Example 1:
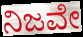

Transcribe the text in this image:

ನಿಜವೇ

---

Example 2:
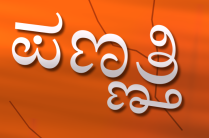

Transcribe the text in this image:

ಪಣ್ಣತ್ತಿ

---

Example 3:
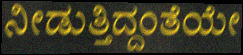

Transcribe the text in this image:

ನೀಡುತ್ತಿದ್ದಂತೆಯೇ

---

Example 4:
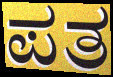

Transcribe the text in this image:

ಪತ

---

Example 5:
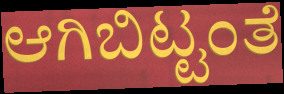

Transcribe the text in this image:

ಆಗಿಬಿಟ್ಟಂತೆ